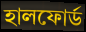
হালফোর্ড